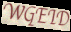
WGEID